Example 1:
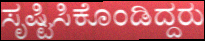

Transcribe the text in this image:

ಸೃಷ್ಟಿಸಿಕೊಂಡಿದ್ದರು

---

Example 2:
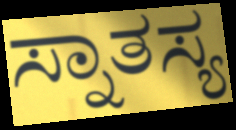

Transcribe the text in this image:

ಸ್ನಾತಸ್ಯ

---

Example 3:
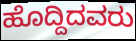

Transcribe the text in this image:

ಹೊದ್ದಿದವರು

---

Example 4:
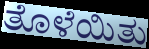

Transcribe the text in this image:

ತೊಳೆಯಿತು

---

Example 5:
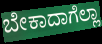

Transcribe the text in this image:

ಬೇಕಾದಾಗೆಲ್ಲಾ